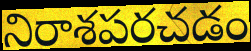
నిరాశపరచడం